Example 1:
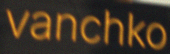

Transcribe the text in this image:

vanchko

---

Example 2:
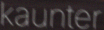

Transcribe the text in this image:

kaunter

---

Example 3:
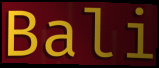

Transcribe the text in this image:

Bali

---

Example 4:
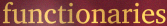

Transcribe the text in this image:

functionaries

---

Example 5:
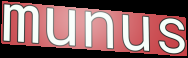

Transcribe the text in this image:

munus